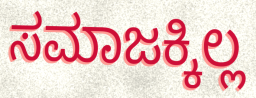
ಸಮಾಜಕ್ಕಿಲ್ಲ